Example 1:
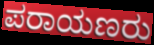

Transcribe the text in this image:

ಪರಾಯಣರು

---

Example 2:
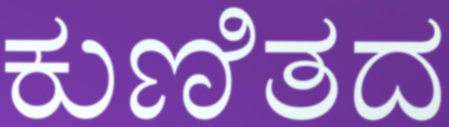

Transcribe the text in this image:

ಕುಣಿತದ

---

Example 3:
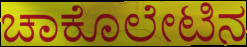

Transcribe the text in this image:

ಚಾಕೊಲೇಟಿನ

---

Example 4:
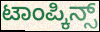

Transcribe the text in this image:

ಟಾಂಪ್ಕಿನ್ಸ್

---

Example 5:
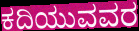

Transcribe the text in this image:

ಕದಿಯುವವರ